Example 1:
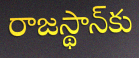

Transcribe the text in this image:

రాజస్థాన్‌కు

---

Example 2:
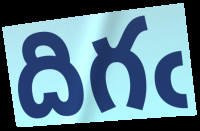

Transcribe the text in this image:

దిగఁ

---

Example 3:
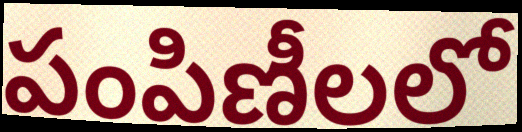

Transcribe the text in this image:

పంపిణీలలో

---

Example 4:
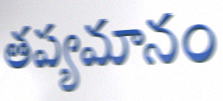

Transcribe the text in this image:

తప్యమానం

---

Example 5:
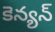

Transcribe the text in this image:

కెన్యన్